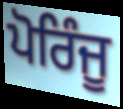
ਪੋਰਿੰਜੂ